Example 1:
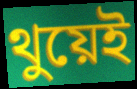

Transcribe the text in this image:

থুয়েই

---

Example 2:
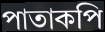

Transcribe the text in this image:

পাতাকপি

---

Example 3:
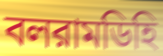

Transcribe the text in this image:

বলরামডিহি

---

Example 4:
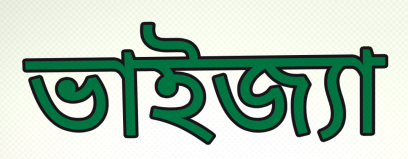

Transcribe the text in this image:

ভাইজ্যা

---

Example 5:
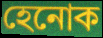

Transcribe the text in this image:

হেনোক